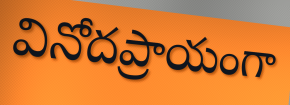
వినోదప్రాయంగా